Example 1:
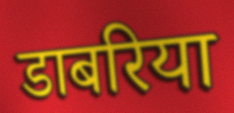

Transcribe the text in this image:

डाबरिया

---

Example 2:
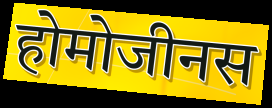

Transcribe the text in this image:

होमोजीनस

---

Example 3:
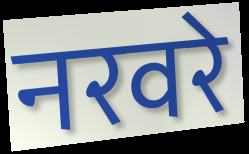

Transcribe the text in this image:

नरवरे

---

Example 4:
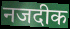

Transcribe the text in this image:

नजदीक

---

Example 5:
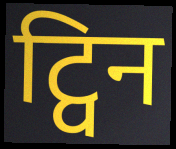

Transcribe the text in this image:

ट्विन